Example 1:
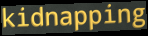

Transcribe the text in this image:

kidnapping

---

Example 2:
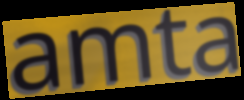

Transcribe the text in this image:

amta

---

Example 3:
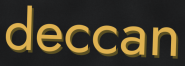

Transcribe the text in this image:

deccan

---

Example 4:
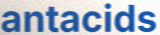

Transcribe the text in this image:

antacids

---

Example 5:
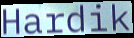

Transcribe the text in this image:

Hardik